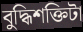
বুদ্ধিশক্তিটা